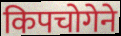
किपचोगेने